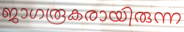
ജാഗരൂകരായിരുന്ന